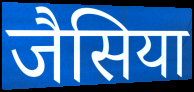
जैसिया